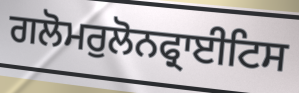
ਗਲੋਮਰੁਲੋਨਫ੍ਰਾਈਟਿਸ